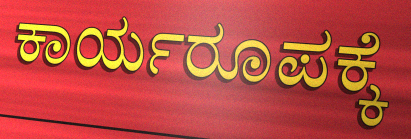
ಕಾರ್ಯರೂಪಕ್ಕೆ